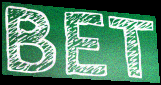
BET